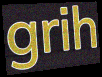
grih